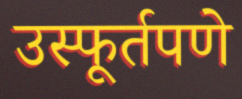
उस्फूर्तपणे